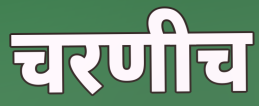
चरणीच